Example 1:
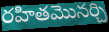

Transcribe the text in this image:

రహితమొనర్చి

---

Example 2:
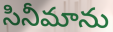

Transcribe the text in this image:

సినీమాను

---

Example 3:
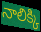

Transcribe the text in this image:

నాలిక్కి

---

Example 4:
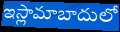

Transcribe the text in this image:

ఇస్లామాబాదులో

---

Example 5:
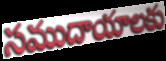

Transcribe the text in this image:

సముదాయాలకు